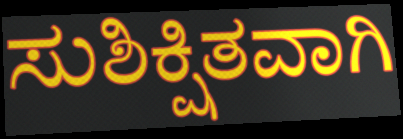
ಸುಶಿಕ್ಷಿತವಾಗಿ